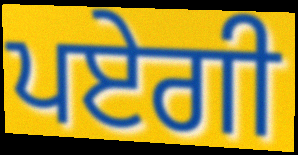
ਪਏਗੀ